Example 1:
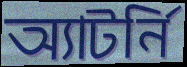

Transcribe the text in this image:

অ্যাটর্নি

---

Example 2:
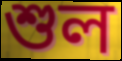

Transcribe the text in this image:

শুল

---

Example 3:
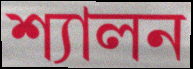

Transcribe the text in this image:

শ্যালন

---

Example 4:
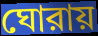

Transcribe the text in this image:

ঘোরায়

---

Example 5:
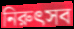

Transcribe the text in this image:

নিরুৎসব